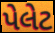
પેલેટ